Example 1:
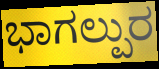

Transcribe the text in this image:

ಭಾಗಲ್ಪುರ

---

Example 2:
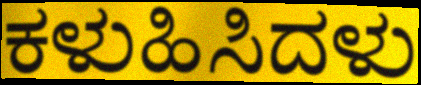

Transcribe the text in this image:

ಕಳುಹಿಸಿದಳು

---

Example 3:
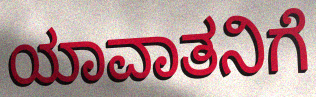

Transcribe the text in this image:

ಯಾವಾತನಿಗೆ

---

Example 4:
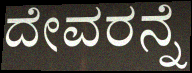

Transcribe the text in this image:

ದೇವರನ್ನೆ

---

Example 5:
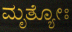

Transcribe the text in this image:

ಮೃತ್ಯೋಃ